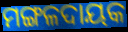
ମଙ୍ଗଳଦାୟକ